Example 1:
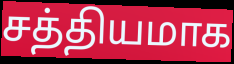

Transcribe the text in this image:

சத்தியமாக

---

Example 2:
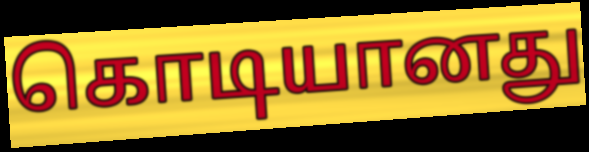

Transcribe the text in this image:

கொடியானது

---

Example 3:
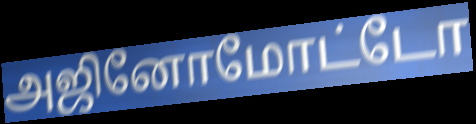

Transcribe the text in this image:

அஜினோமோட்டோ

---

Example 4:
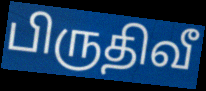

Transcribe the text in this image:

பிருதிவீ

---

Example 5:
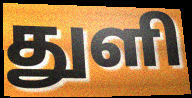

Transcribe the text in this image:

துளி